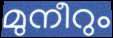
മുനീറും